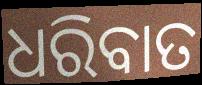
ଧରିବାତ